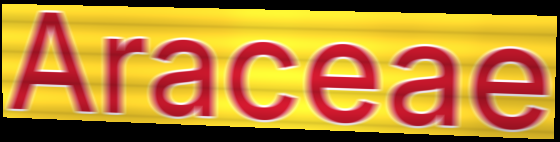
Araceae